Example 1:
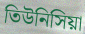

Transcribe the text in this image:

তিউনিসিয়া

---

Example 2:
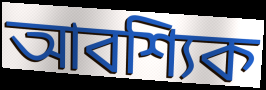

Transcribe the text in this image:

আবশ্যিক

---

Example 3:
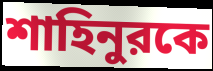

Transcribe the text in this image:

শাহিনুরকে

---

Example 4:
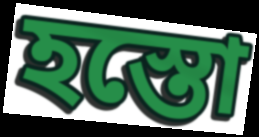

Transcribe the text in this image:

হস্তো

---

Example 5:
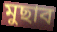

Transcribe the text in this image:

মুছাব